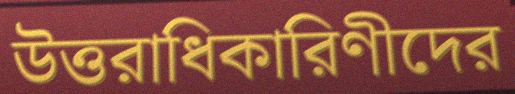
উত্তরাধিকারিণীদের